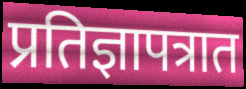
प्रतिज्ञापत्रात